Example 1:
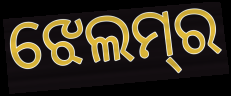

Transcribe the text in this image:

ଝେଲମ୍‌ର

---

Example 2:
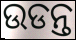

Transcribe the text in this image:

ଉଡନ୍ତ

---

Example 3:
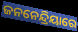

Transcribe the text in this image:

ଜନନେନ୍ଦ୍ରିୟାରେ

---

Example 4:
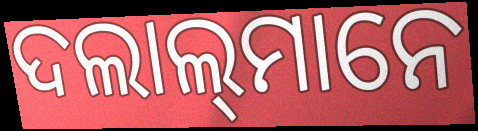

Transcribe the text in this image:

ଦଲାଲ୍‍ମାନେ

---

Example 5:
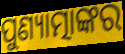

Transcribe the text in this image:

ପୁଣ୍ୟାତ୍ମାଙ୍କର